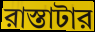
রাস্তাটার